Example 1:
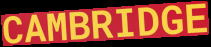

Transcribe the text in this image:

CAMBRIDGE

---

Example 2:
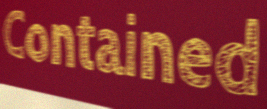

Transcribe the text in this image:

Contained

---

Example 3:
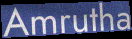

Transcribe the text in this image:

Amrutha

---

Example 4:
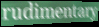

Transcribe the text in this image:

rudimentary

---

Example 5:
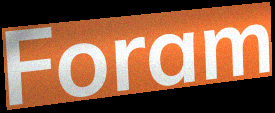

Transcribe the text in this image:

Foram